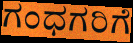
ಗಂಧಗರಿಗೆ